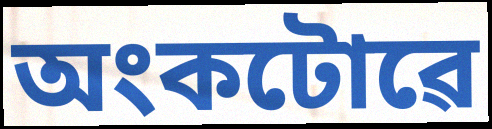
অংকটোৱে